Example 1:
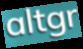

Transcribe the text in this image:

altgr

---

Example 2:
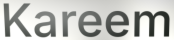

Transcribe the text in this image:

Kareem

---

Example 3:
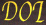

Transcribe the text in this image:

DOI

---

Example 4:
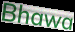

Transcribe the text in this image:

Bhawa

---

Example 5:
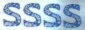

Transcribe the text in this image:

SSSS